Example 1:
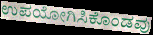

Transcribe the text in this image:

ಉಪಯೋಗಿಸಿಕೊಂಡವು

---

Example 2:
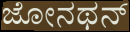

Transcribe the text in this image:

ಜೋನಥನ್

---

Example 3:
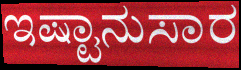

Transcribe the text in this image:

ಇಷ್ಟಾನುಸಾರ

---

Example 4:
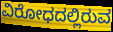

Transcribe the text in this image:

ವಿರೋಧದಲ್ಲಿರುವ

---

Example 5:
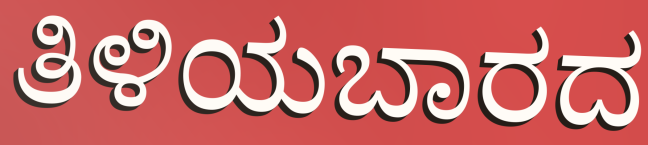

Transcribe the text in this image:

ತಿಳಿಯಬಾರದ